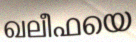
ഖലീഫയെ